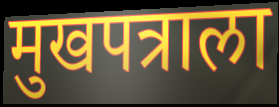
मुखपत्राला